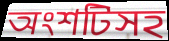
অংশটিসহ